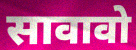
सावावो